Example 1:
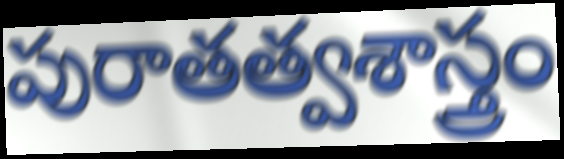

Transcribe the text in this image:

పురాతత్వశాస్త్రం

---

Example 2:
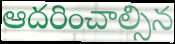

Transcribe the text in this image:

ఆదరించాల్సిన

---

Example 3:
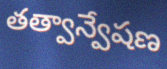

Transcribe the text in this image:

తత్వాన్వేషణ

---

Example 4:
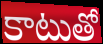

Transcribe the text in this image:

కాటుతో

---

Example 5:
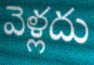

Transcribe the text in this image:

వెళ్లదు